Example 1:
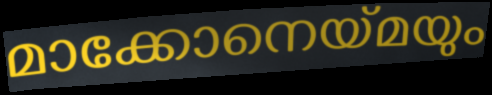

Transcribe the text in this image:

മാക്കോനെയ്മയും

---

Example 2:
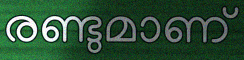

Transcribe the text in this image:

രണ്ടുമാണ്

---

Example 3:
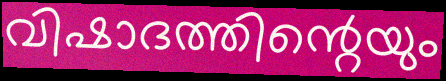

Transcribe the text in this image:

വിഷാദത്തിന്റെയും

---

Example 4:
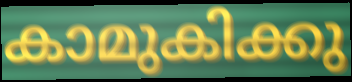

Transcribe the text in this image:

കാമുകിക്കു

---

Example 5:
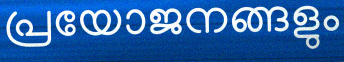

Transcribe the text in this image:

പ്രയോജനങ്ങളും